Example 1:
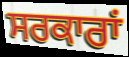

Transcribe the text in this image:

ਸਰਕਾਰਾਂ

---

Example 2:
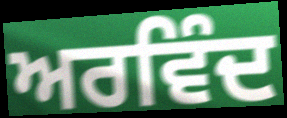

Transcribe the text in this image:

ਅਰਵਿੰਦ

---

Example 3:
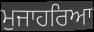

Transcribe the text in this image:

ਮੁਜਾਹਰਿਆ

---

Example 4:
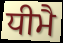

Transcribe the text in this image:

ਧੀਮੈ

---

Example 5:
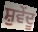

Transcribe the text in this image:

ਸ਼ੁਵੇਂਦੂ